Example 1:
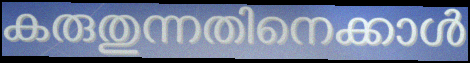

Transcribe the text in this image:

കരുതുന്നതിനെക്കാൾ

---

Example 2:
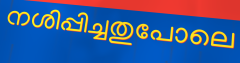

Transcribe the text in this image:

നശിപ്പിച്ചതുപോലെ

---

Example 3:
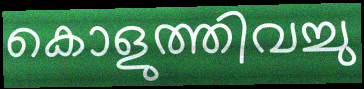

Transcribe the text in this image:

കൊളുത്തിവച്ചു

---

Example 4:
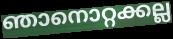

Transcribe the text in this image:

ഞാനൊറ്റക്കല്ല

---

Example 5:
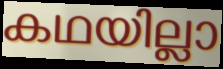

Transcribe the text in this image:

കഥയില്ലാ